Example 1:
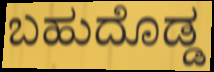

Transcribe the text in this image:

ಬಹುದೊಡ್ಡ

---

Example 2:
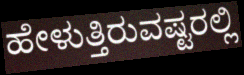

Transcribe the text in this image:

ಹೇಳುತ್ತಿರುವಷ್ಟರಲ್ಲಿ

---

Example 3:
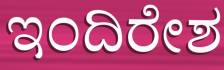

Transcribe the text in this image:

ಇಂದಿರೇಶ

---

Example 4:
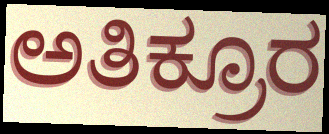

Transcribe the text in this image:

ಅತಿಕ್ರೂರ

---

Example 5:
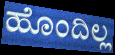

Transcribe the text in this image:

ಹೊಂದಿಲ್ಲ